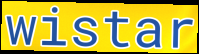
wistar